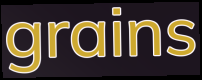
grains